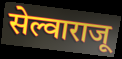
सेल्वाराजू